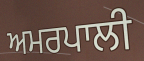
ਅਮਰਪਾਲੀ